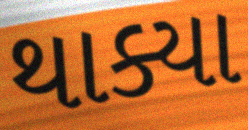
થાક્યા